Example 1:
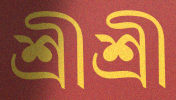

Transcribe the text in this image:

শ্রীশ্রী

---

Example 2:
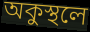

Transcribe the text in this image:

অকুস্থলে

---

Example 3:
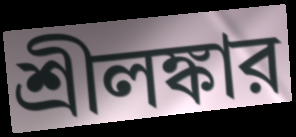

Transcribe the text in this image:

শ্রীলঙ্কার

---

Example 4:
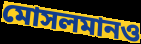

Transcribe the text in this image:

মোসলমানও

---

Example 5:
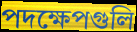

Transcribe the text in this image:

পদক্ষেপগুলি